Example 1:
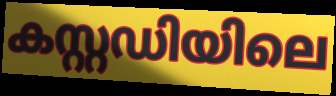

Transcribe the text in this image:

കസ്റ്റഡിയിലെ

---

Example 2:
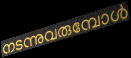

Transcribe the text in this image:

നടന്നുവരുമ്പോൾ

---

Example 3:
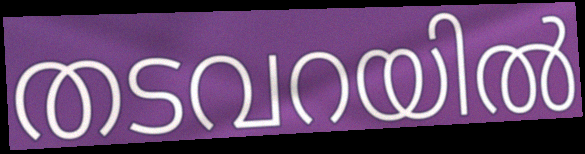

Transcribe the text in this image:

തടവറയിൽ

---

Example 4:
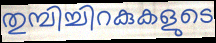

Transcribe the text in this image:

തുമ്പിച്ചിറകുകളുടെ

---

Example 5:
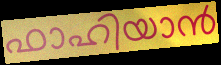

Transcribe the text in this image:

ഫാഹിയാൻ